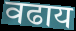
वढाय